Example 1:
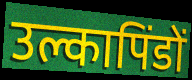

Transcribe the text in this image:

उल्कापिंडों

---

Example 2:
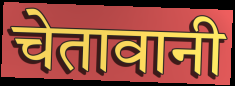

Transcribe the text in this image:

चेतावानी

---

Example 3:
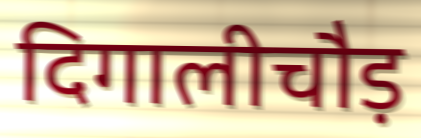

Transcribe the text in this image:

दिगालीचौड़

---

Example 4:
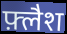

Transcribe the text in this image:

फ़्लैश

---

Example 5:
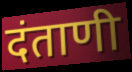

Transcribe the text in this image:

दंताणी